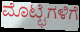
ಮೊಟ್ಟೆಗಳಿಗೆ